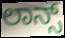
ಲಾನ್ಸ್